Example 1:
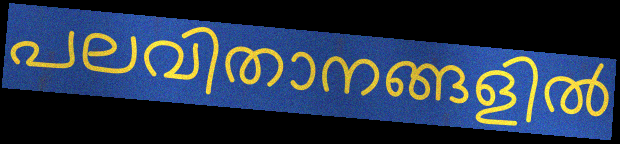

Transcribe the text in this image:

പലവിതാനങ്ങളിൽ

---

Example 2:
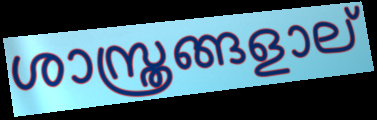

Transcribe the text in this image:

ശാസ്ത്രങ്ങളാല്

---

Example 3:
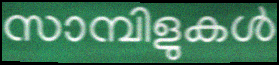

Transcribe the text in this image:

സാമ്പിളുകൾ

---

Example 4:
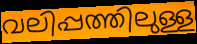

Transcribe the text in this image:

വലിപ്പത്തിലുള്ള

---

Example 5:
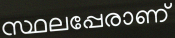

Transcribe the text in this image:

സ്ഥലപ്പേരാണ്